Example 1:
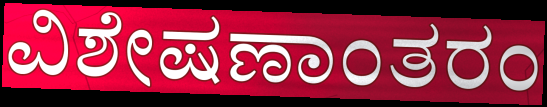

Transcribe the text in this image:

ವಿಶೇಷಣಾಂತರಂ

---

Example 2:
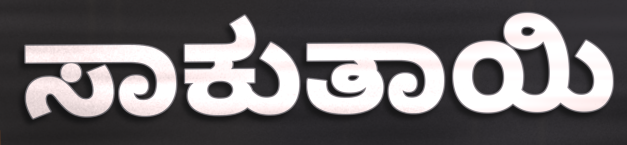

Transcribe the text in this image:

ಸಾಕುತಾಯಿ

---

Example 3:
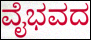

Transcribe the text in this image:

ವೈಭವದ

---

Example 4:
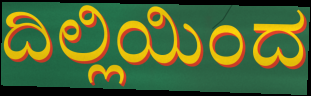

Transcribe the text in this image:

ದಿಲ್ಲಿಯಿಂದ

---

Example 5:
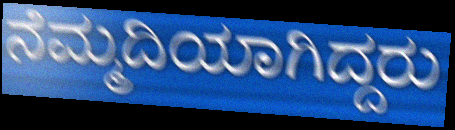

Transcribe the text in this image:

ನೆಮ್ಮದಿಯಾಗಿದ್ದರು